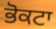
ਭੋਕਟਾ